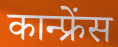
कान्फ्रेंस